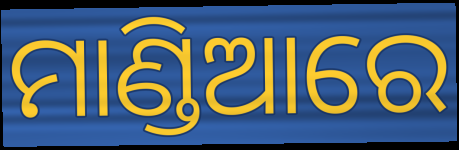
ମାଣ୍ଡିଆରେ